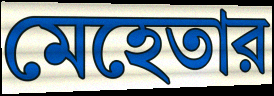
মেহেতার